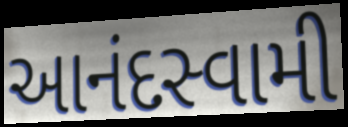
આનંદસ્વામી